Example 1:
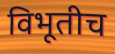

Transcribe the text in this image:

विभूतीच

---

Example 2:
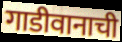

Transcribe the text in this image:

गाडीवानाची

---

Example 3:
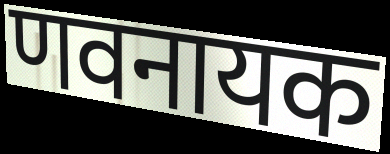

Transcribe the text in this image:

णवनायक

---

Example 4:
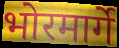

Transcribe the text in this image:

भोरमार्गे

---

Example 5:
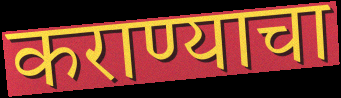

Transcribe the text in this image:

कराण्याचा